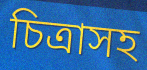
চিত্রাসহ